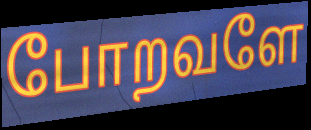
போறவளே